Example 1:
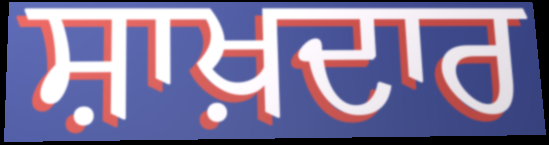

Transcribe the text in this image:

ਸ਼ਾਖ਼ਦਾਰ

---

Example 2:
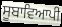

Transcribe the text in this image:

ਸੂਬਾਵਿਆਪੀ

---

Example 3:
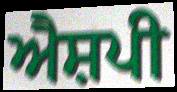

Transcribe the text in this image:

ਐਸ਼ਪੀ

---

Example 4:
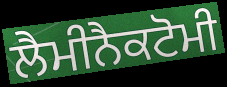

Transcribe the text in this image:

ਲੈਮੀਨੈਕਟੋਮੀ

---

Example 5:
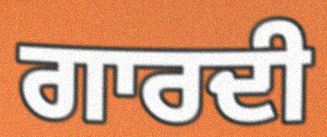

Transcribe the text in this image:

ਗਾਰਦੀ